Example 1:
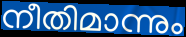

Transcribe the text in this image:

നീതിമാന്നും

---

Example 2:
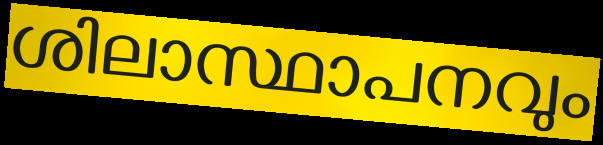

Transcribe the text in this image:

ശിലാസ്ഥാപനവും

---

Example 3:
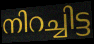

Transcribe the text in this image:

നിറച്ചിട്ട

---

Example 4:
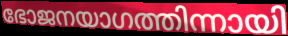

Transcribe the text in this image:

ഭോജനയാഗത്തിന്നായി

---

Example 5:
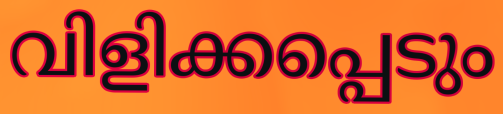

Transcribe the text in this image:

വിളിക്കപ്പെടും